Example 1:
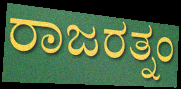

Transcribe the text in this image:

ರಾಜರತ್ನಂ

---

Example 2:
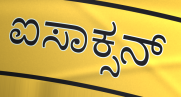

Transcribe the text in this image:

ಐಸಾಕ್ಸನ್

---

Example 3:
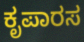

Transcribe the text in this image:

ಕೃಪಾರಸ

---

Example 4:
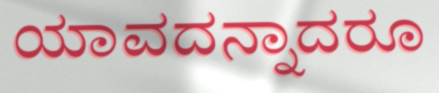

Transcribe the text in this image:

ಯಾವದನ್ನಾದರೂ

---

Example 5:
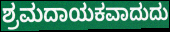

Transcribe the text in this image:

ಶ್ರಮದಾಯಕವಾದುದು